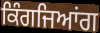
ਕਿੰਗਜਿਆਂਗ